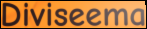
Diviseema